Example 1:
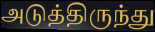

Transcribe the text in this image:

அடுத்திருந்து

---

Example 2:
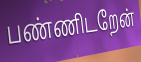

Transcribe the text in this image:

பண்ணிடறேன்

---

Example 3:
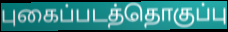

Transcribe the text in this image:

புகைப்படத்தொகுப்பு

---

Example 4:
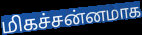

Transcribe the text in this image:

மிகச்சன்னமாக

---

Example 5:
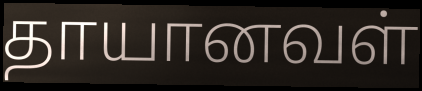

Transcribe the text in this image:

தாயானவள்